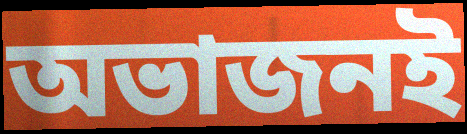
অভাজনই